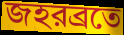
জহরব্রতে